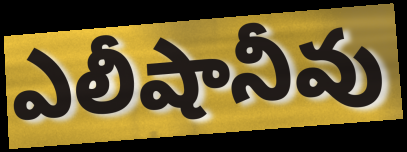
ఎలీషానీవు